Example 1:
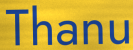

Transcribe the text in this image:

Thanu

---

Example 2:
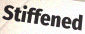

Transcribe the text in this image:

Stiffened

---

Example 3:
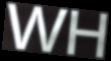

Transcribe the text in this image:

WH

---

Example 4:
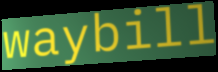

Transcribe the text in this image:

waybill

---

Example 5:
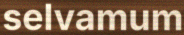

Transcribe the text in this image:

selvamum